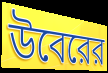
উবেরের